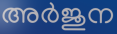
അർജുന